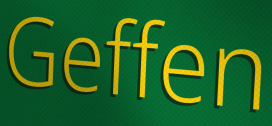
Geffen